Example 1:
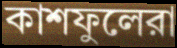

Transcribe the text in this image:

কাশফুলেরা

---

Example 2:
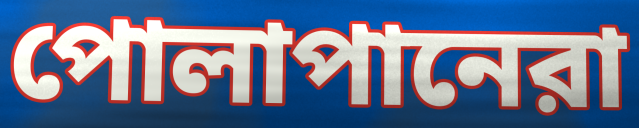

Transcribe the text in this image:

পোলাপানেরা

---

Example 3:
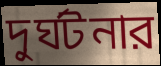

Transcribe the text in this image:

দুর্ঘটনার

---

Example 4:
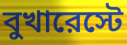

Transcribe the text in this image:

বুখারেস্টে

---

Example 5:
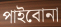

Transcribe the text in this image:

পাইবোনা